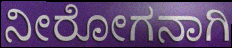
ನೀರೋಗನಾಗಿ